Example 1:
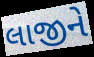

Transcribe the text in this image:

લાજીને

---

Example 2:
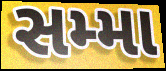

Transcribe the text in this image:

સમ્મા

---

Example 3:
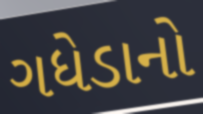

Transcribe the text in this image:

ગધેડાનો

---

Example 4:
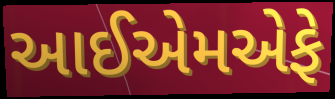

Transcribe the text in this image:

આઈએમએફે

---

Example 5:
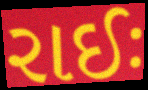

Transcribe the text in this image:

રાઈઃ